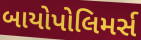
બાયોપોલિમર્સ